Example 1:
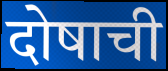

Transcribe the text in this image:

दोषाची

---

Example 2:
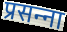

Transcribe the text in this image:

प्रसन्ना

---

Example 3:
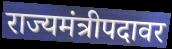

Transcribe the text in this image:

राज्यमंत्रीपदावर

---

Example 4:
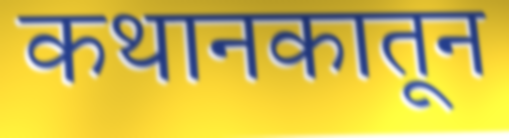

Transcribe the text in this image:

कथानकातून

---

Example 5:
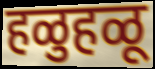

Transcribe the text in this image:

हळुहळू